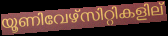
യൂണിവേഴ്സിറ്റികളില്